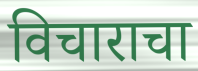
विचाराचा